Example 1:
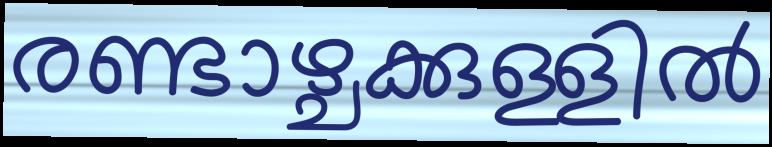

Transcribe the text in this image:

രണ്ടാഴ്ചക്കുള്ളിൽ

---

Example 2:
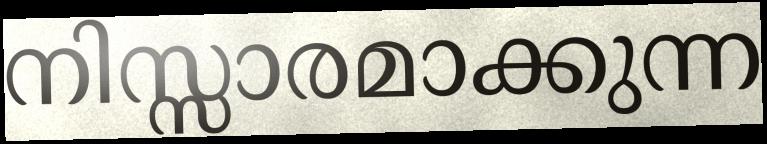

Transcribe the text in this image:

നിസ്സാരമാക്കുന്ന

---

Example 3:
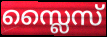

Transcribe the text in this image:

സ്ലൈസ്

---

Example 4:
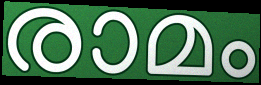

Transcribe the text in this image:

രാമം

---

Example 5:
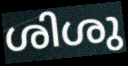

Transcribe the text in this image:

ശിശു